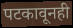
पटकावूनही